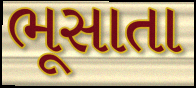
ભૂસાતા